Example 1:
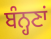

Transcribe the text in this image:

ਬੰਨ੍ਹਣਾਂ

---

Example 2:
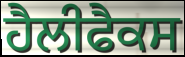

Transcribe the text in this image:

ਹੈਲੀਫੈਕਸ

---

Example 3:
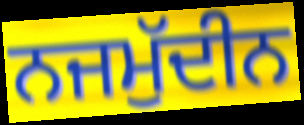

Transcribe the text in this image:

ਨਜਮੁੱਦੀਨ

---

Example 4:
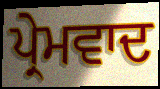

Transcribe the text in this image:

ਪ੍ਰੇਮਵਾਦ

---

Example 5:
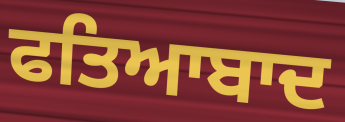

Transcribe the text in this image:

ਫਤਿਆਬਾਦ